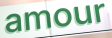
amour